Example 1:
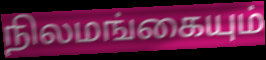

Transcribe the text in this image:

நிலமங்கையும்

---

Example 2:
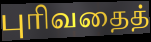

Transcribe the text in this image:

புரிவதைத்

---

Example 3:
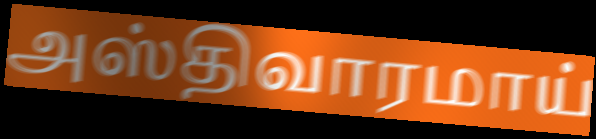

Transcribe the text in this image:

அஸ்திவாரமாய்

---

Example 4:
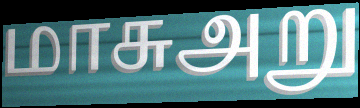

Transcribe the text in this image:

மாசுஅறு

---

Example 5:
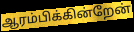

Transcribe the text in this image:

ஆரம்பிக்கின்றேன்